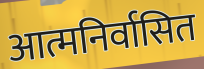
आत्मनिर्वासित